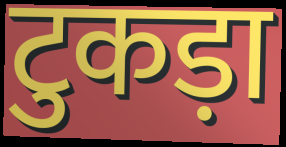
टुकड़ा